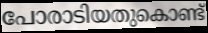
പോരാടിയതുകൊണ്ട്